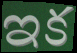
ఇక